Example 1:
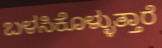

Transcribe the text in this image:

ಬಳಸಿಕೊಳ್ಳುತ್ತಾರೆ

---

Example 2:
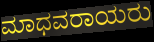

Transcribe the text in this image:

ಮಾಧವರಾಯರು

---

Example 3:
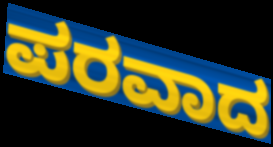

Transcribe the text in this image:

ಪರವಾದ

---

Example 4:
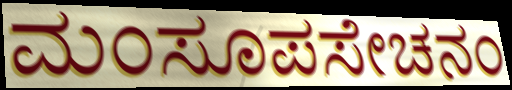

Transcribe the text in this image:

ಮಂಸೂಪಸೇಚನಂ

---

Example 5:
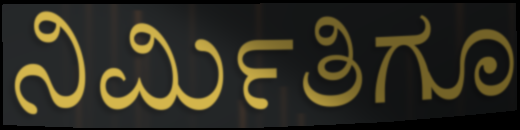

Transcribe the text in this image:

ನಿರ್ಮಿತಿಗೂ